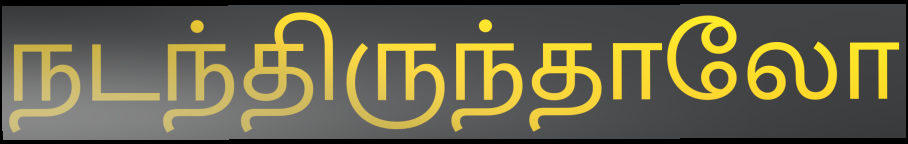
நடந்திருந்தாலோ